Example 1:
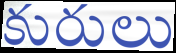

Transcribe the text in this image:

కురులు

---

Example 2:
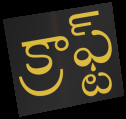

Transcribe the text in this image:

క్రాఫ్ట్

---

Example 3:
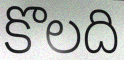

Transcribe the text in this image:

కొలది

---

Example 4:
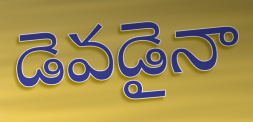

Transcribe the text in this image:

డెవడైనా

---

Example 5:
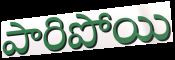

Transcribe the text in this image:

పారిపోయి